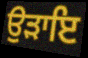
ਉੜਾਇ